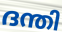
ദന്തി